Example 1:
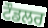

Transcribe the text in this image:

ਟੌਡਲਰ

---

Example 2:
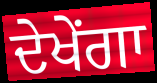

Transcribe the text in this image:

ਦੇਖੇਂਗਾ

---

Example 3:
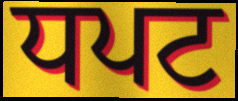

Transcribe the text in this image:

ਧਪਟ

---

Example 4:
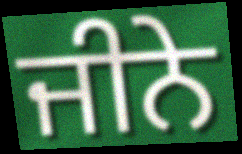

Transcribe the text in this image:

ਜੀਨੇ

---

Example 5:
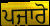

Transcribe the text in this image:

ਪਜਾਰੋ